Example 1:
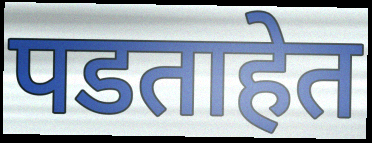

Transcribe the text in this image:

पडताहेत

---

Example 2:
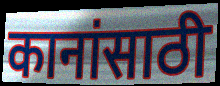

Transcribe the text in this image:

कानांसाठी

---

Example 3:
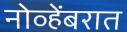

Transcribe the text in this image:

नोव्हेंबरात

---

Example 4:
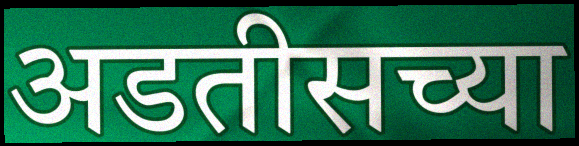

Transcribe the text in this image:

अडतीसच्या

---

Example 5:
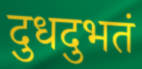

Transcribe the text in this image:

दुधदुभतं